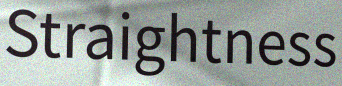
Straightness